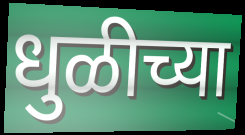
धुळीच्या